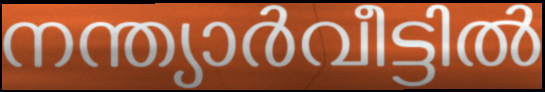
നന്ത്യാർവീട്ടിൽ